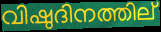
വിഷുദിനത്തില്